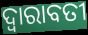
ଦ୍ଵାରାବତୀ